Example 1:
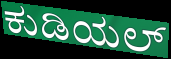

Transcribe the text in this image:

ಕುಡಿಯಲ್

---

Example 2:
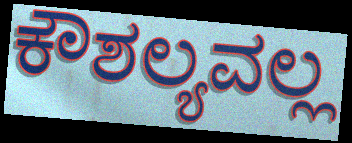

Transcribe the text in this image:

ಕೌಶಲ್ಯವಲ್ಲ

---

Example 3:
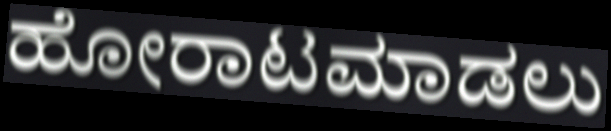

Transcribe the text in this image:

ಹೋರಾಟಮಾಡಲು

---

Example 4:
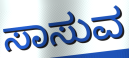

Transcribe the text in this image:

ಸಾಸುವ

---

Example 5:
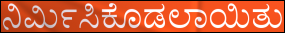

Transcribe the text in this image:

ನಿರ್ಮಿಸಿಕೊಡಲಾಯಿತು